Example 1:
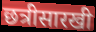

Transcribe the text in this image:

छत्रीसारखी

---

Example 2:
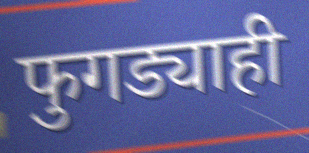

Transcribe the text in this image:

फुगड्याही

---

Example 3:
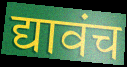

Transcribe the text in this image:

द्यावंच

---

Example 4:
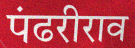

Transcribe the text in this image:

पंढरीराव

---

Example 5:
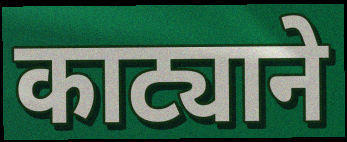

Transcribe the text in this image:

काट्याने